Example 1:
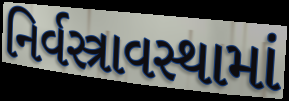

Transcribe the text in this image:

નિર્વસ્ત્રાવસ્થામાં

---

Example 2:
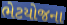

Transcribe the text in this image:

ભેટયોજના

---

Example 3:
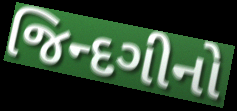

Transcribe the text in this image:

જિન્દગીનો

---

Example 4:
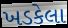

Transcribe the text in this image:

ખડકેલા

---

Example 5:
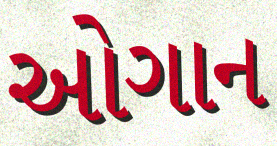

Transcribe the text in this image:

ઓગાન